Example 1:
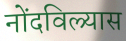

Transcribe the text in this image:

नोंदविल्यास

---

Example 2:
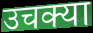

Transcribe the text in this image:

उचक्या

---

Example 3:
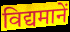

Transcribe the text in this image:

विद्यमानें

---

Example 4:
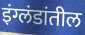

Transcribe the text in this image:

इंग्लंडांतील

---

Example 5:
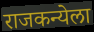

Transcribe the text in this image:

राजकन्येला